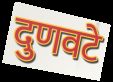
दुणवटे